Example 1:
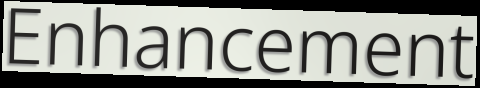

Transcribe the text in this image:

Enhancement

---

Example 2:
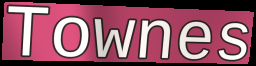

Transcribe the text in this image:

Townes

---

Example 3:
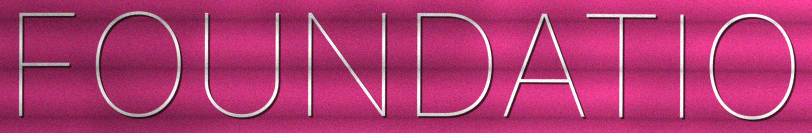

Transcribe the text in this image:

FOUNDATIO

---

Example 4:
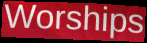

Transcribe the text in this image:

Worships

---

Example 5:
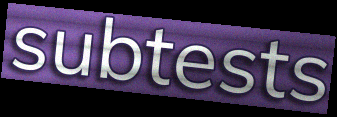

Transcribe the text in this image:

subtests